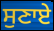
ਸੁਣਾਏ